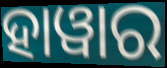
ହାୱାର